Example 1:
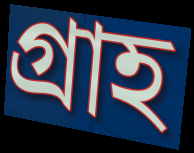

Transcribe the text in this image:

গ্রাহ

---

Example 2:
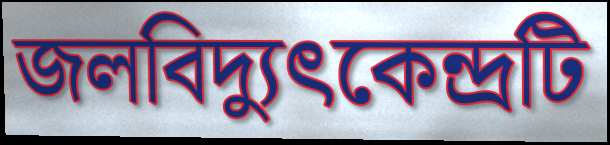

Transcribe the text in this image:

জলবিদ্যুৎকেন্দ্রটি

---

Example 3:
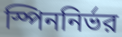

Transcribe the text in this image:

স্পিননির্ভর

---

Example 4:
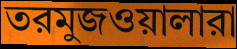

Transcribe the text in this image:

তরমুজওয়ালারা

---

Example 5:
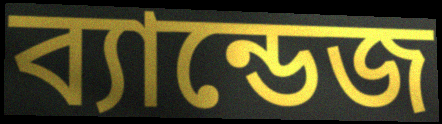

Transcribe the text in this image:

ব্যান্ডেজ